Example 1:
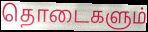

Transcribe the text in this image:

தொடைகளும்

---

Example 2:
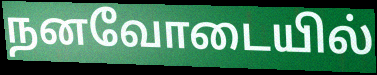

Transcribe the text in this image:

நனவோடையில்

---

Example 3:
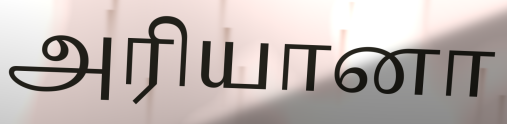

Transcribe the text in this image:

அரியானா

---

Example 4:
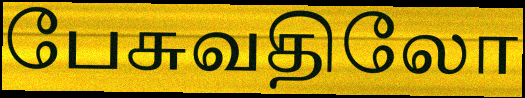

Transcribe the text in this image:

பேசுவதிலோ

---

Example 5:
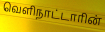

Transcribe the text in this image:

வெளிநாட்டாரின்